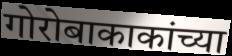
गोरोबाकाकांच्या